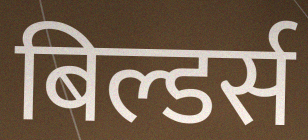
बिल्डर्स